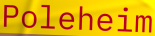
Poleheim